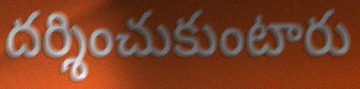
దర్శించుకుంటారు